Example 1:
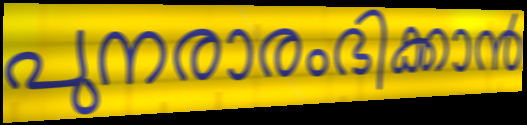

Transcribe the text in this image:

പുനരാരംഭിക്കാൻ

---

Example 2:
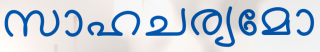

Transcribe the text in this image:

സാഹചര്യമോ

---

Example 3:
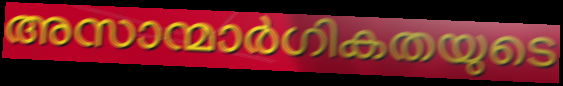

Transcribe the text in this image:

അസാന്മാർഗികതയുടെ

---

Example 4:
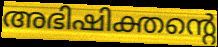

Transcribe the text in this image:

അഭിഷിക്തന്റെ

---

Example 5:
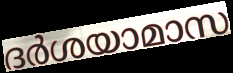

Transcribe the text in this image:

ദർശയാമാസ